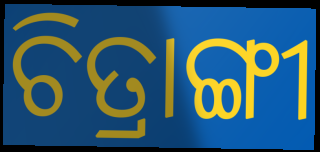
ଚିତ୍ରାଙ୍ଗୀ